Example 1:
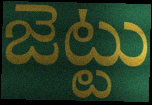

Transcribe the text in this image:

జెట్టు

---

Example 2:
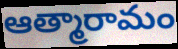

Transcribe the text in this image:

ఆత్మారామం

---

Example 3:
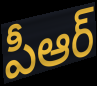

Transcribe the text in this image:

పీఆర్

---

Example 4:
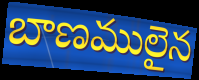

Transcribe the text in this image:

బాణములైన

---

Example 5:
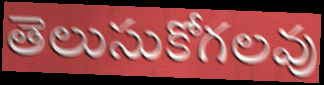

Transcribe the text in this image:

తెలుసుకోగలవు